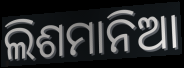
ଲିଶମାନିଆ